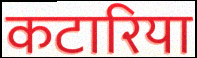
कटारिया